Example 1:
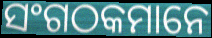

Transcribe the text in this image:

ସଂଗଠକମାନେ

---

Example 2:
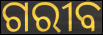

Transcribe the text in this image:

ଗରୀବ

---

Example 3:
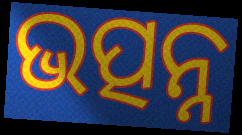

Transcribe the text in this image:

ଭତ୍ପନ୍ନ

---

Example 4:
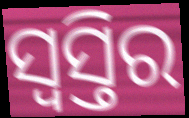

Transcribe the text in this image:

ସ୍ୱସ୍ତିର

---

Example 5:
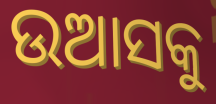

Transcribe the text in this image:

ଉଆସକୁ